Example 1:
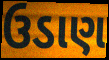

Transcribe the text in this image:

ઉડાણ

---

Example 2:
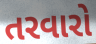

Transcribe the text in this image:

તરવારો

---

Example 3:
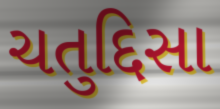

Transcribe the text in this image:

ચતુદ્દિસા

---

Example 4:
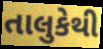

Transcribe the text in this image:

તાલુકેથી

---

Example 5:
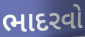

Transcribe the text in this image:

ભાદરવો